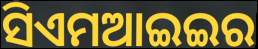
ସିଏମଆଇଇର